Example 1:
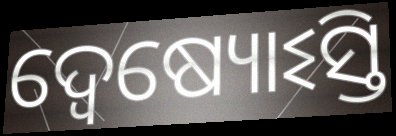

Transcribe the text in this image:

ଦ୍ୱେଷ୍ୟୋଽସ୍ତି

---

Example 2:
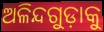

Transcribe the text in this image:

ଅଳିନ୍ଦଗୁଡ଼ାକୁ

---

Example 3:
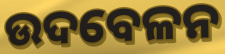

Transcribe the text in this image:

ଉଦବେଳନ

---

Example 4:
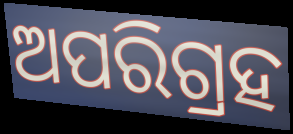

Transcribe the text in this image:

ଅପରିଗ୍ରହ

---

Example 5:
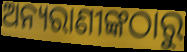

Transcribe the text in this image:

ଅନ୍ୟରାଣୀଙ୍କଠାରୁ